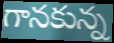
గానకున్న